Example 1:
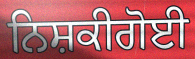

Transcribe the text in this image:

ਨਿਸ਼ਕੀਗੋਈ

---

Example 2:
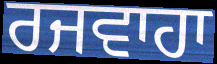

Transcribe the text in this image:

ਰਜਵਾਹਾ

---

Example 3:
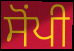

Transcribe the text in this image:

ਸੋੰਪੀ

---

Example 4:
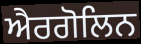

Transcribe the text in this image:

ਐਰਗੋਲਿਨ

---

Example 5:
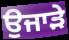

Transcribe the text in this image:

ਉਜਾੜੇ